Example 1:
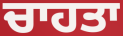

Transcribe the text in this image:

ਚਾਹਤਾ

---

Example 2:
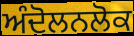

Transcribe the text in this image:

ਅੰਦੋਲਨਲੋਕ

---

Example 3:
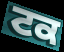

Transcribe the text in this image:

ਟਕ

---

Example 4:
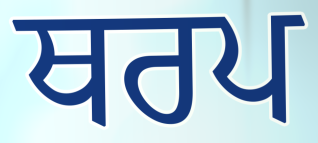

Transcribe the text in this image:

ਥਰਪ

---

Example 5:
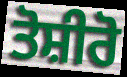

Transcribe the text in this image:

ਤੋਸ਼ੀਰੋ